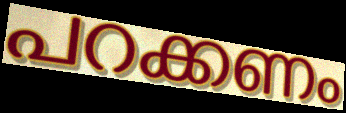
പറക്കണം